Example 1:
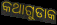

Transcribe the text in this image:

କଥାଗୁଡାକ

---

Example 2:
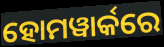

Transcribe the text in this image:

ହୋମୱାର୍କରେ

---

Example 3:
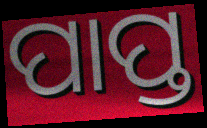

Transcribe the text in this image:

ପାପ୍ତ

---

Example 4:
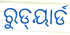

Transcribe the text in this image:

ରୁଡ୍‌ୟାର୍ଡ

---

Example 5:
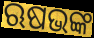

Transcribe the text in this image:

ଋଷଭଙ୍କ